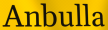
Anbulla